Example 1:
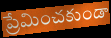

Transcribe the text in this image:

ప్రేమించకుండా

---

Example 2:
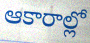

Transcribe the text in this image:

ఆకారాల్లో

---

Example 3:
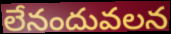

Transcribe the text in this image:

లేనందువలన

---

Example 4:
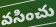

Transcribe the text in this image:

వసించు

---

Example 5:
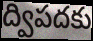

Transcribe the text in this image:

ద్విపదకు